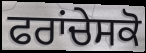
ਫਰਾਂਚੇਸਕੋ